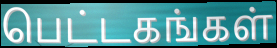
பெட்டகங்கள்